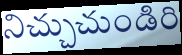
నిచ్చుచుండిరి